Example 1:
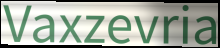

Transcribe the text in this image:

Vaxzevria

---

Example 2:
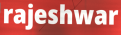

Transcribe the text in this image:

rajeshwar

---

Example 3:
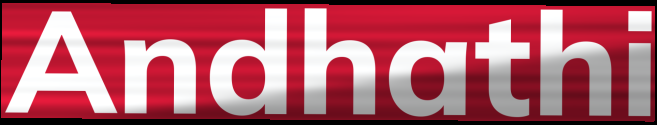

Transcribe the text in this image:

Andhathi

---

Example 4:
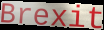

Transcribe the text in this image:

Brexit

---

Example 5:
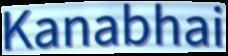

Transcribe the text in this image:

Kanabhai